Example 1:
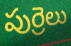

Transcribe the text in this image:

పుర్రెలు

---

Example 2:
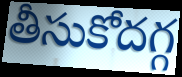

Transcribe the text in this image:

తీసుకోదగ్గ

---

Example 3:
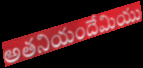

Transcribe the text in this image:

అతనియందేమియు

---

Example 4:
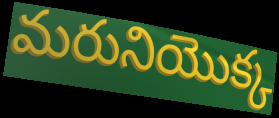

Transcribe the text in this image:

మరునియొక్క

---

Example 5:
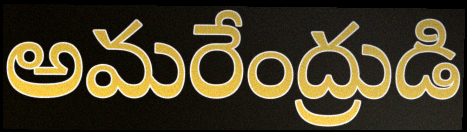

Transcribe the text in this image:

అమరేంద్రుడి